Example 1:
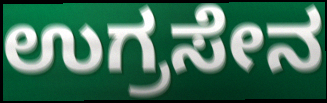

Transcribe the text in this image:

ಉಗ್ರಸೇನ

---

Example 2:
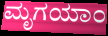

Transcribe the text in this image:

ಮೃಗಯಾಂ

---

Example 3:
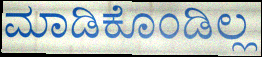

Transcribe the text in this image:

ಮಾಡಿಕೊಂಡಿಲ್ಲ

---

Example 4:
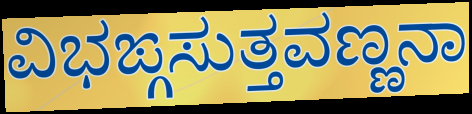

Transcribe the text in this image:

ವಿಭಙ್ಗಸುತ್ತವಣ್ಣನಾ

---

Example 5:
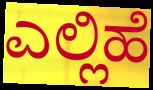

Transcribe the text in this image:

ಎಲ್ಲಿಹೆ